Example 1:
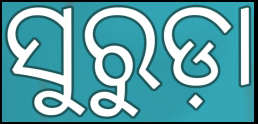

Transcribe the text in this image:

ସୁରୁଡ଼ା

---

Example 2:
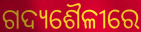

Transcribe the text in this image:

ଗଦ୍ୟଶୈଳୀରେ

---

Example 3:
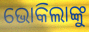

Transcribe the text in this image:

ଭୋକିଲାଙ୍କୁ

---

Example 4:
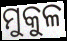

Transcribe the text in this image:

ମୁକୁଳ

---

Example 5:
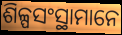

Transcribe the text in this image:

ଶିଳ୍ପସଂସ୍ଥାମାନେ